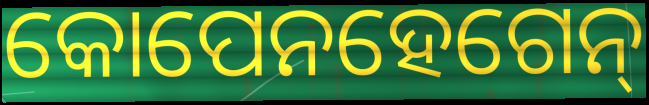
କୋପେନହେଗେନ୍